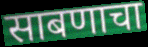
साबणाचा